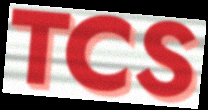
TCS